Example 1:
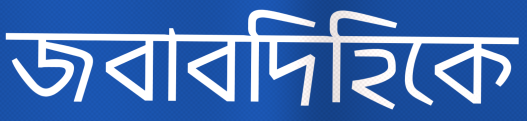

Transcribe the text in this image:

জবাবদিহিকে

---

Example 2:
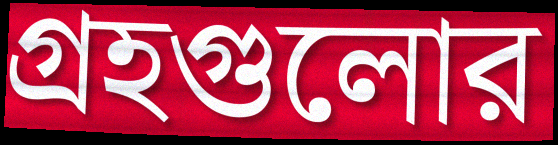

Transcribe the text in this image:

গ্রহগুলোর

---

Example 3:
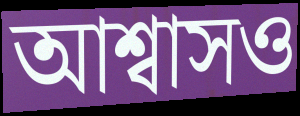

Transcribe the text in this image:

আশ্বাসও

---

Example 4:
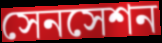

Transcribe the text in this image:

সেনসেশন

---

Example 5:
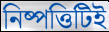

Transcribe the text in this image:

নিষ্পত্তিটিই